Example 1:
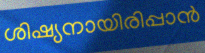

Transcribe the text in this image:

ശിഷ്യനായിരിപ്പാൻ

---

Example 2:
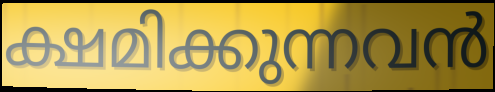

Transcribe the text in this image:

ക്ഷമിക്കുന്നവൻ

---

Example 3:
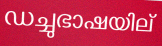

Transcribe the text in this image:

ഡച്ചുഭാഷയില്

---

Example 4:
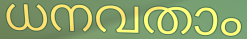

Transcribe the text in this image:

ധനവതാം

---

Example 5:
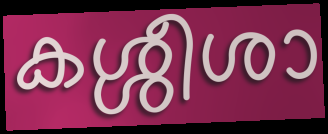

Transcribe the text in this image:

കശ്ശീശാ